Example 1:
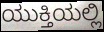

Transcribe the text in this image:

ಯುಕ್ತಿಯಲ್ಲಿ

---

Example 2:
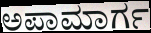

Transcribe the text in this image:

ಅಪಾಮಾರ್ಗ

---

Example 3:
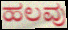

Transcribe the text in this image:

ಹಲವು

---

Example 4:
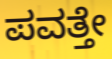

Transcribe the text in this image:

ಪವತ್ತೇ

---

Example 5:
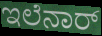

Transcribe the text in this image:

ಇಲೆನಾರ್